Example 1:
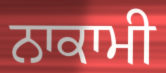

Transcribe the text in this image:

ਨਾਕਾਮੀ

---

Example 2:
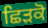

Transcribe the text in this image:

ਛਿੜਕੋ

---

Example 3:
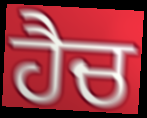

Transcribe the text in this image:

ਹੈਚ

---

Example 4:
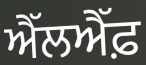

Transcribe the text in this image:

ਐੱਲਐੱਫ਼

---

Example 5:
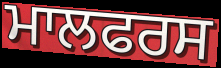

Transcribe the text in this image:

ਮਾਲਫਰਸ